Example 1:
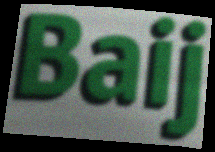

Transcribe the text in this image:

Baij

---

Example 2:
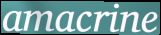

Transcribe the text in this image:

amacrine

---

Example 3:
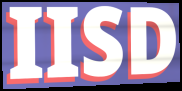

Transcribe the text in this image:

IISD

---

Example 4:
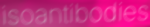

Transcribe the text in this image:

isoantibodies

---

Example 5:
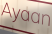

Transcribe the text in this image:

Ayaan